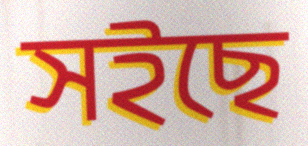
সইছে